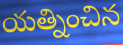
యత్నించిన